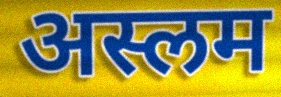
अस्लम